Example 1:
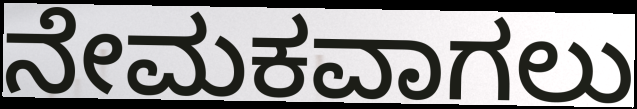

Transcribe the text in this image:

ನೇಮಕವಾಗಲು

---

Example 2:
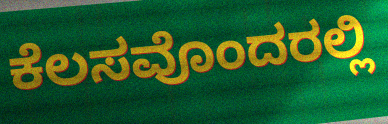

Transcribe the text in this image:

ಕೆಲಸವೊಂದರಲ್ಲಿ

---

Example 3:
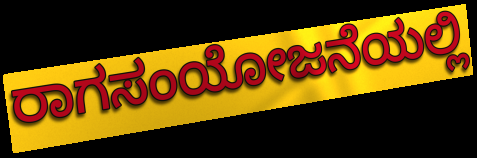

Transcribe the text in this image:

ರಾಗಸಂಯೋಜನೆಯಲ್ಲಿ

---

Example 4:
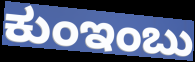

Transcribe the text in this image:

ಕುಂಇಂಬು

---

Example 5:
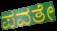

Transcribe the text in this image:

ಪವತೇ